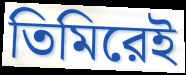
তিমিরেই